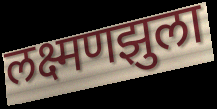
लक्ष्मणझुला